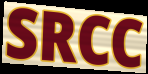
SRCC